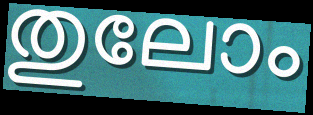
തുലോം